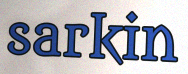
sarkin